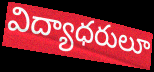
విద్యాధరులూ